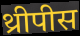
थ्रीपीस